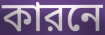
কারনে